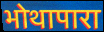
भोथापारा